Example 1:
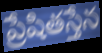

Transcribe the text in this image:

ప్రేషితస్తేన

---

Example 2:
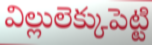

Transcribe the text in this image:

విల్లులెక్కుపెట్టి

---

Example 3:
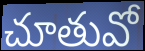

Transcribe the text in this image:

చూతువో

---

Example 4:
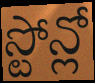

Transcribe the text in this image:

స్టోన్లో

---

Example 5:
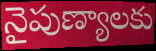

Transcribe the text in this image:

నైపుణ్యాలకు